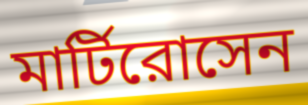
মার্টিরোসেন